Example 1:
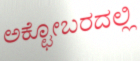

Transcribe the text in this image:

ಅಕ್ಟೋಬರದಲ್ಲಿ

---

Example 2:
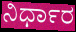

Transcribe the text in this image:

ನಿರ್ಧಾರ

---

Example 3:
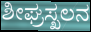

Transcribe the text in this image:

ಶೀಘ್ರಸ್ಖಲನ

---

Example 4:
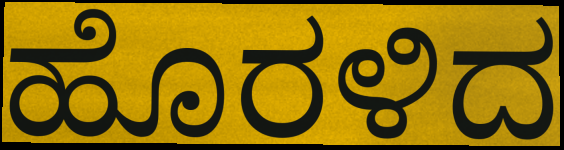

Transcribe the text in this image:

ಹೊರಳಿದ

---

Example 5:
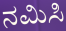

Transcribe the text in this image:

ನಮಿಸಿ